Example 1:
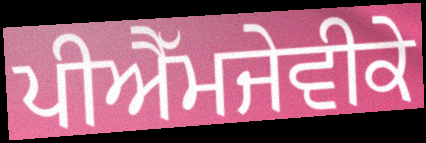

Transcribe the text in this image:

ਪੀਐੱਮਜੇਵੀਕੇ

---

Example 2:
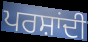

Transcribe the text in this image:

ਪਰਸ਼ਾਂਦੀ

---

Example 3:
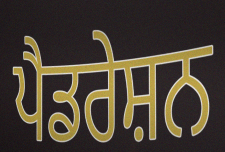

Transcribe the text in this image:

ਪੈਡਰੇਸ਼ਨ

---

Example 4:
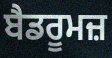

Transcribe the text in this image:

ਬੈਡਰੂਮਜ਼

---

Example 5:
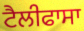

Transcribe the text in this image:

ਟੈਲੀਫਾਸਾ